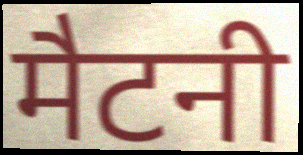
मैटनी